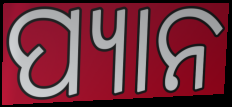
ପ୍ୟାନ